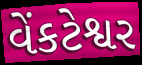
વેંકટેશ્વર